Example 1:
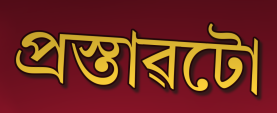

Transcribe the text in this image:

প্ৰস্তাৱটো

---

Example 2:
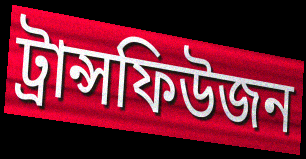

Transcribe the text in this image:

ট্ৰান্সফিউজন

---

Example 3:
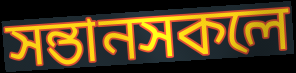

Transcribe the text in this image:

সন্তানসকলে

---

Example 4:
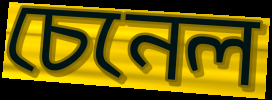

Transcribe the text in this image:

চেনেল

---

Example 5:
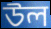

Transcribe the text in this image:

উল